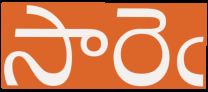
సారెఁ